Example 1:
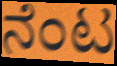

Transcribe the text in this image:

ನೆಂಟ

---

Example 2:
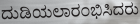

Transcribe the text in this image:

ದುಡಿಯಲಾರಂಭಿಸಿದರು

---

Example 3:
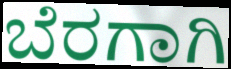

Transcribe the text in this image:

ಬೆರಗಾಗಿ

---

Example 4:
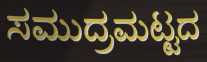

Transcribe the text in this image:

ಸಮುದ್ರಮಟ್ಟದ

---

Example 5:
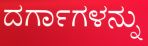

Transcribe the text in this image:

ದರ್ಗಾಗಳನ್ನು